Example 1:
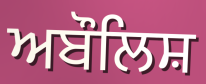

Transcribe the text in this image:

ਅਬੌਲਿਸ਼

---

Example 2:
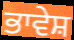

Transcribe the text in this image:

ਭਾਵੇਸ਼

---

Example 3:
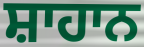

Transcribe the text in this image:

ਸ਼ਾਹਾਨ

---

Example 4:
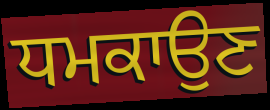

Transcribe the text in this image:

ਧਮਕਾਉਣ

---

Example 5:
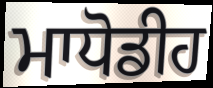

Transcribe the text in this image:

ਮਾਧੋਡੀਹ